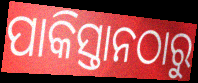
ପାକିସ୍ତାନଠାରୁ